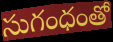
సుగంధంతో